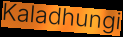
Kaladhungi